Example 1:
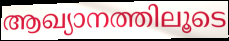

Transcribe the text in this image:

ആഖ്യാനത്തിലൂടെ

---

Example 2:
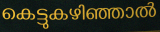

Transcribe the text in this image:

കെട്ടുകഴിഞ്ഞാൽ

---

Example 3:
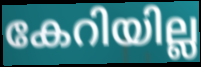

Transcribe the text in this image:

കേറിയില്ല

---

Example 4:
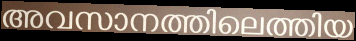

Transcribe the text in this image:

അവസാനത്തിലെത്തിയ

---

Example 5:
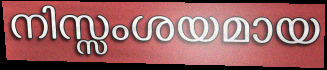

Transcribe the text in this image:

നിസ്സംശയമായ